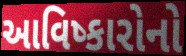
આવિષ્કારોનો